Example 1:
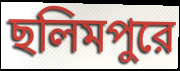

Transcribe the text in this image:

ছলিমপুরে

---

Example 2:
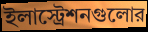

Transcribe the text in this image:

ইলাস্ট্রেশনগুলোর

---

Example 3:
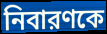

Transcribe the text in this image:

নিবারণকে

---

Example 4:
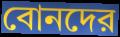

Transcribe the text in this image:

বোনদের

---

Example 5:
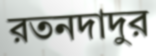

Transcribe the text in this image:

রতনদাদুর